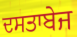
ਦਸਤਾਬੇਜ